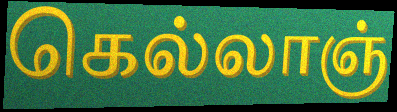
கெல்லாஞ்